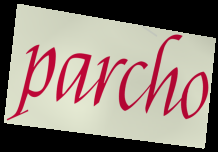
parcho